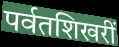
पर्वतशिखरीं